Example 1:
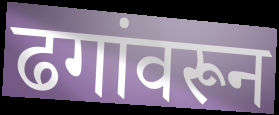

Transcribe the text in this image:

ढगांवरून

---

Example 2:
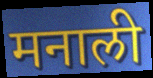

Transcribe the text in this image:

मनाली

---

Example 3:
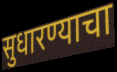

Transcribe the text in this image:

सुधारण्याचा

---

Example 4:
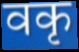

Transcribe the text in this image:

वकृ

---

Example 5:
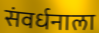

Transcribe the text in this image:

संवर्धनाला